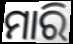
ମାରି